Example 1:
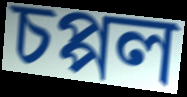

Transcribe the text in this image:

চপ্পল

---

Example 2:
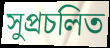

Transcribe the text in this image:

সুপ্রচলিত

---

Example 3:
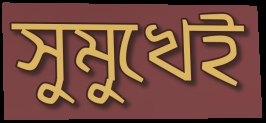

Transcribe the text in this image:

সুমুখেই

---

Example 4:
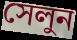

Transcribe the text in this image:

সেলুন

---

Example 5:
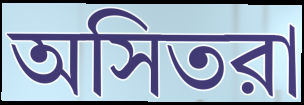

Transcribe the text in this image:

অসিতরা